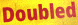
Doubled